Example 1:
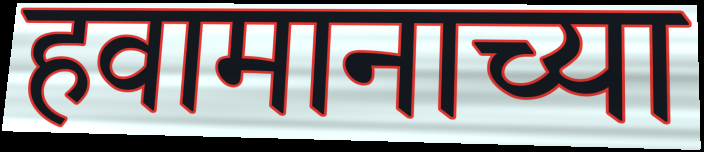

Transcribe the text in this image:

हवामानाच्या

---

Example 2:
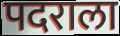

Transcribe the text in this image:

पदराला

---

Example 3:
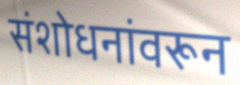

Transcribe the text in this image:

संशोधनांवरून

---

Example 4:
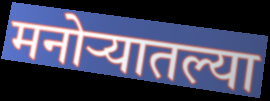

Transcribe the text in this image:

मनोर्‍यातल्या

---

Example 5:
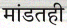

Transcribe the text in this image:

मांडतही